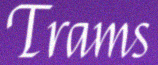
Trams